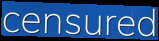
censured